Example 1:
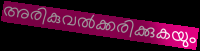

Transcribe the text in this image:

അരികുവൽക്കരിക്കുകയും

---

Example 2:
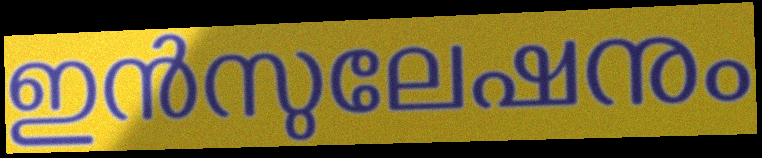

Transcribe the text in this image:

ഇൻസുലേഷനും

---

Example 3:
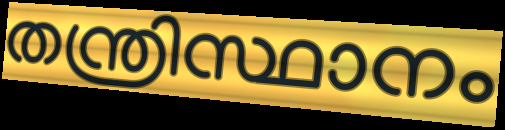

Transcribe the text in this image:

തന്ത്രിസ്ഥാനം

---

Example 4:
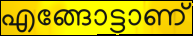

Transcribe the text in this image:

എങ്ങോട്ടാണ്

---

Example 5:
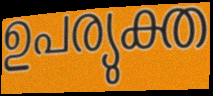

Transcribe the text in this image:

ഉപര്യുക്ത